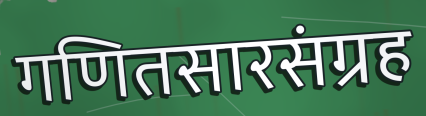
गणितसारसंग्रह